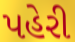
પહેરી